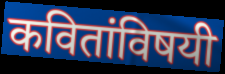
कवितांविषयी